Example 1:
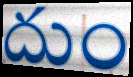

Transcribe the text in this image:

దుం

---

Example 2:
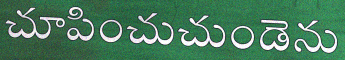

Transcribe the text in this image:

చూపించుచుండెను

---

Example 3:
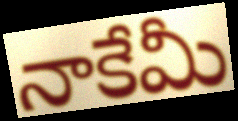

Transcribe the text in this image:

నాకేమీ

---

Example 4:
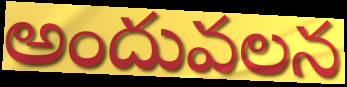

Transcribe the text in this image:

అందువలన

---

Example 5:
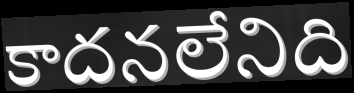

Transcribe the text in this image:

కాదనలేనిది